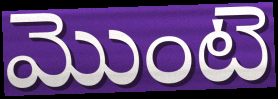
మొంటె